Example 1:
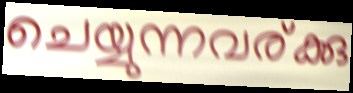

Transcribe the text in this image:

ചെയ്യുന്നവര്ക്കു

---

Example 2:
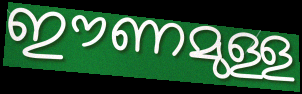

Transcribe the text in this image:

ഈണമുള്ള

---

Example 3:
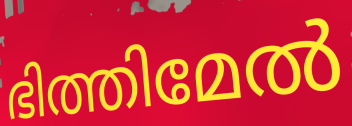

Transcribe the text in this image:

ഭിത്തിമേൽ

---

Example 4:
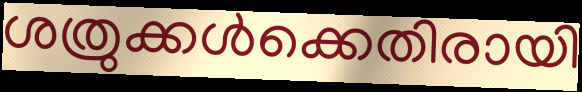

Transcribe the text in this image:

ശത്രുക്കൾക്കെതിരായി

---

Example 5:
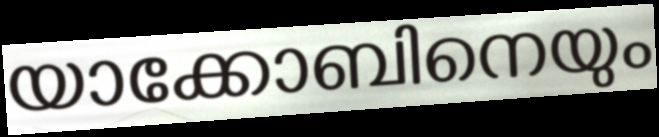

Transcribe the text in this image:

യാക്കോബിനെയും